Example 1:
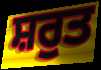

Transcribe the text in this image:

ਸ਼ਰੁਤ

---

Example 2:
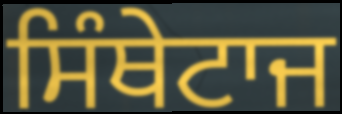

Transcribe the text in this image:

ਸਿੰਥੇਟਾਜ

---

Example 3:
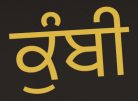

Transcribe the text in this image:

ਕੁੰਬੀ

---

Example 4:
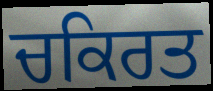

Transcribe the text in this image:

ਚਕਿਰਤ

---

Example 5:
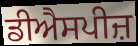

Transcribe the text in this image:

ਡੀਐਸਪੀਜ਼